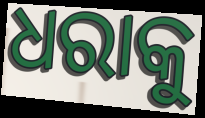
ଧରାକୁ